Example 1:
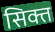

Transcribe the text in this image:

सिक्त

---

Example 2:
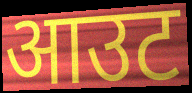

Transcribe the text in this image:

आउट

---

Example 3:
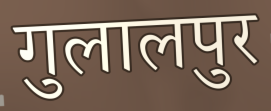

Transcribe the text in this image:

गुलालपुर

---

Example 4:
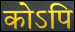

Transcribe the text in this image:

कोऽपि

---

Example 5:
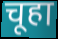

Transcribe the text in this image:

चूहा